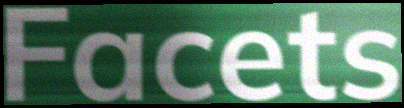
Facets